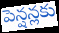
పెన్షన్లకు